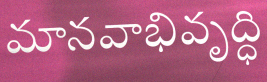
మానవాభివృద్ధి